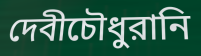
দেবীচৌধুরানি